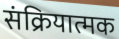
संक्रियात्मक